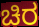
ಚಿರ